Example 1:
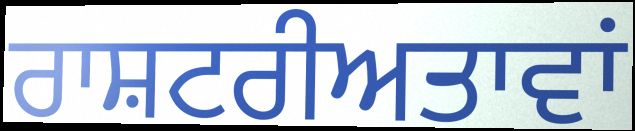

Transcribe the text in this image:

ਰਾਸ਼ਟਰੀਅਤਾਵਾਂ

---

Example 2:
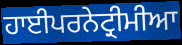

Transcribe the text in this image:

ਹਾਈਪਰਨੇਟ੍ਰੀਮੀਆ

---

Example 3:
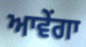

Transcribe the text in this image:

ਆਵੇਂਗਾ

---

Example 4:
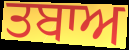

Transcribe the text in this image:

ਤਬਾਅ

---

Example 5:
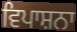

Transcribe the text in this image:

ਵਿਪਾਸ਼ਨਾ